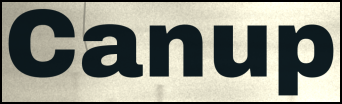
Canup